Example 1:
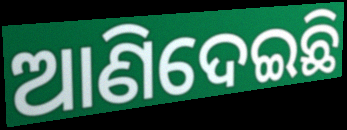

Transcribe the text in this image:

ଆଣିଦେଇଛି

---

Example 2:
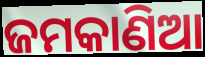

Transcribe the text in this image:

ଜମକାଣିଆ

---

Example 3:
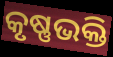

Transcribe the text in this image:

କୃଷ୍ଣଭକ୍ତି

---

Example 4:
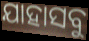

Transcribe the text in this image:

ଯାହାସବୁ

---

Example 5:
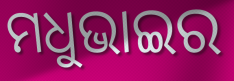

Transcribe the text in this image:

ମଧୁଭାଇର